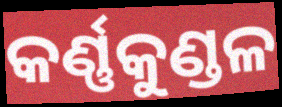
କର୍ଣ୍ଣକୁଣ୍ଡଳ